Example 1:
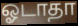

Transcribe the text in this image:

ஓடாதா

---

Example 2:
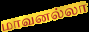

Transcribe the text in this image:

மாவனல்லா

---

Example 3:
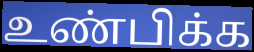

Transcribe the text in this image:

உண்பிக்க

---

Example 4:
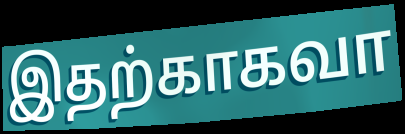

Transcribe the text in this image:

இதற்காகவா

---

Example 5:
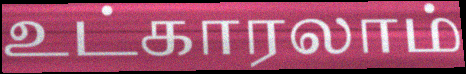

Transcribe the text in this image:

உட்காரலாம்